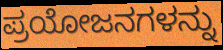
ಪ್ರಯೋಜನಗಳನ್ನು